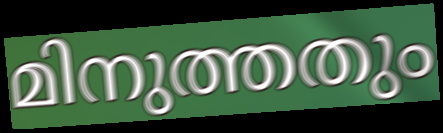
മിനുത്തതും